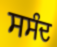
ਸਸੰਦ